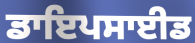
ਡਾਇਪਸਾਈਡ